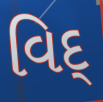
વિદ્